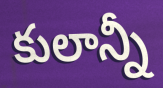
కులాన్నీ